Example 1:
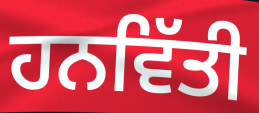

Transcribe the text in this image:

ਹਨਵਿੱਤੀ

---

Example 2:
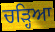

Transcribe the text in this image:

ਚੜ੍ਹਿਆ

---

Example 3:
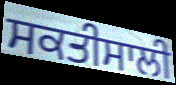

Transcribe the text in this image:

ਸਕਤੀਸਾਲੀ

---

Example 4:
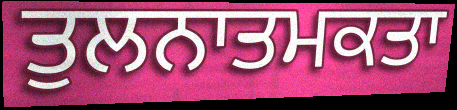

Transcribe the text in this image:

ਤੁਲਨਾਤਮਕਤਾ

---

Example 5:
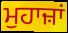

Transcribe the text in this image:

ਮੁਹਾਜ਼ਾਂ